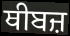
ਥੀਬਜ਼